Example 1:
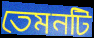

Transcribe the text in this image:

তেমনটি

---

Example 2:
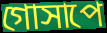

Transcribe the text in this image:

গোসাপে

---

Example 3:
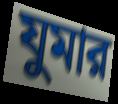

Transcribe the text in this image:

যুমার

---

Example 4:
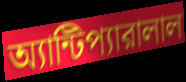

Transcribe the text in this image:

অ্যান্টিপ্যারালাল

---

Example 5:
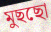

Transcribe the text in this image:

মুছছো